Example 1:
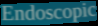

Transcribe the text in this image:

Endoscopic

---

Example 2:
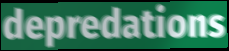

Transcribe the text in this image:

depredations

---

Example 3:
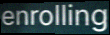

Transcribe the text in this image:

enrolling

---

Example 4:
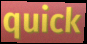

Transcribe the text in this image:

quick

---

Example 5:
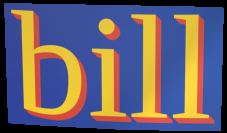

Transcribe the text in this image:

bill